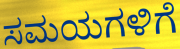
ಸಮಯಗಳಿಗೆ